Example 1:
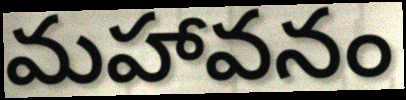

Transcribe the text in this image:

మహావనం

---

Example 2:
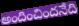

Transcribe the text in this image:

అందించిందనేది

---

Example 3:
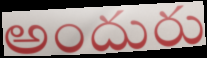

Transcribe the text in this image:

అందురు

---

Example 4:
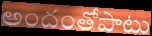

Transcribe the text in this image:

అందంతోపాటు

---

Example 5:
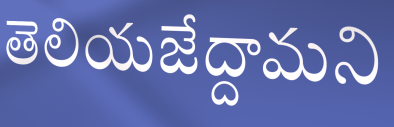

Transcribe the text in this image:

తెలియజేద్దామని